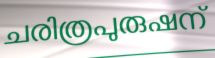
ചരിത്രപുരുഷന്